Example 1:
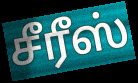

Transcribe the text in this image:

சீரீஸ்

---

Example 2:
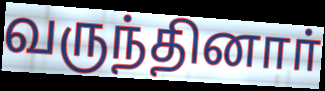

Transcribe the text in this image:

வருந்தினார்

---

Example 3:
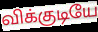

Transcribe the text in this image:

விக்குடியே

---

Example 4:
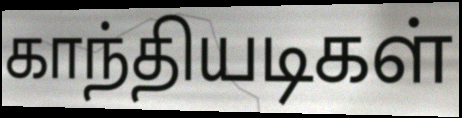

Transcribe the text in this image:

காந்தியடிகள்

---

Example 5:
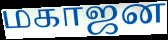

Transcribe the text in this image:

மகாஜன